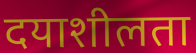
दयाशीलता